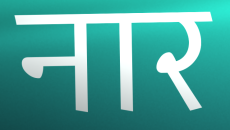
नार